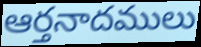
ఆర్తనాదములు